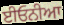
ਈਓਨੀਆ